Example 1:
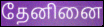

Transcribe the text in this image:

தேனினை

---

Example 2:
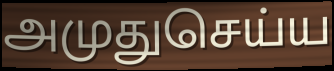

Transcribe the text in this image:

அமுதுசெய்ய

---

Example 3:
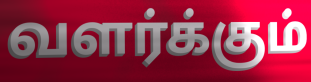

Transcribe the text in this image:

வளர்க்கும்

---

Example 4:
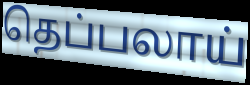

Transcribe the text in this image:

தெப்பலாய்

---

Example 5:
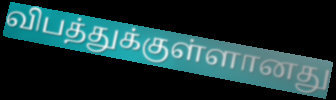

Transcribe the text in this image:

விபத்துக்குள்ளானது